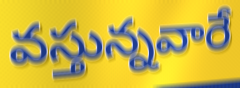
వస్తున్నవారే